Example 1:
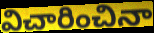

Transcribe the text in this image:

విచారించినా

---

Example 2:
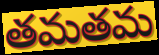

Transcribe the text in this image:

తమతమ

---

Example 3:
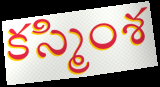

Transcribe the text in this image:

కస్మింశ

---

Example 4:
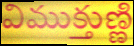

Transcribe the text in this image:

విముక్తుణ్ణి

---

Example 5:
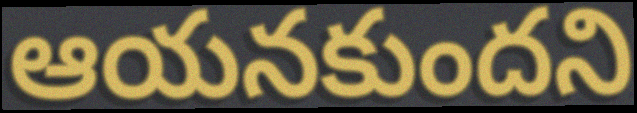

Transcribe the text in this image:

ఆయనకుందని